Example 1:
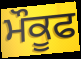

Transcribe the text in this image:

ਮੌਕੂਫ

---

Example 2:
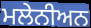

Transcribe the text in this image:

ਮਲੇਨੀਅਨ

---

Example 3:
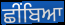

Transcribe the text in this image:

ਛੀਂਬਿਆ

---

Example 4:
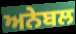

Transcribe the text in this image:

ਅਨੇਬਲ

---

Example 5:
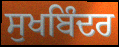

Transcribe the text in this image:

ਸੁਖਬਿੰਦਰ